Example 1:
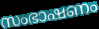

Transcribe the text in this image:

സംഭാഷണം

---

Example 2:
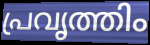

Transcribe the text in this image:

പ്രവൃത്തിം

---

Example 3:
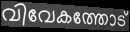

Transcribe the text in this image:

വിവേകത്തോട്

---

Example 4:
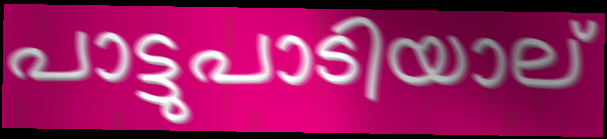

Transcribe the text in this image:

പാട്ടുപാടിയാല്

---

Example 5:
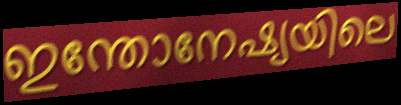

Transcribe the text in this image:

ഇന്തോനേഷ്യയിലെ